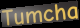
Tumcha